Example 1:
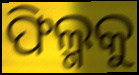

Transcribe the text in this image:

ଫିଲ୍ମକୁ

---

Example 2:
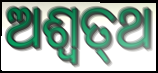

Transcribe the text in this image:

ଅଶ୍ଵତ୍‌ଥ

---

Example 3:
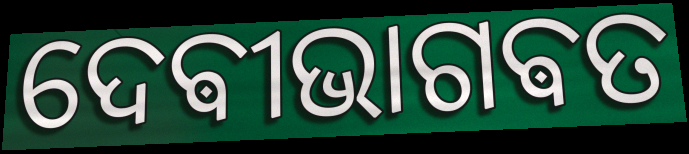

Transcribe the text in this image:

ଦେଵୀଭାଗଵତ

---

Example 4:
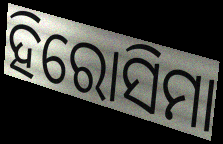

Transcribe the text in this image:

ହିରୋସିମା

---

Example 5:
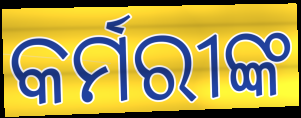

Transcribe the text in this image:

କର୍ମରୀଙ୍କ